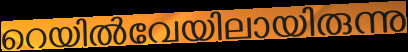
റെയിൽവേയിലായിരുന്നു